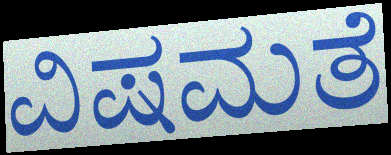
ವಿಷಮತೆ